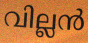
വില്ലൻ